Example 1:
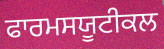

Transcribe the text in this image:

ਫਾਰਮਸਯੂਟੀਕਲ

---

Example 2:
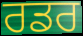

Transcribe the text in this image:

ਰਡਰ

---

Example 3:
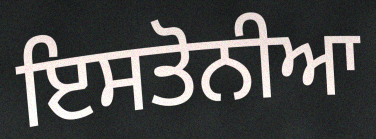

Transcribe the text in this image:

ਇਸਤੋਨੀਆ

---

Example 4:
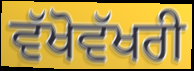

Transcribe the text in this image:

ਵੱਖੋਵੱਖਰੀ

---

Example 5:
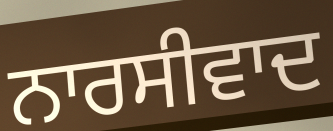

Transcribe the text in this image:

ਨਾਰਸੀਵਾਦ